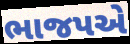
ભાજપએ